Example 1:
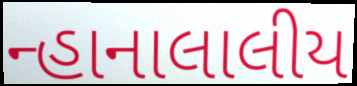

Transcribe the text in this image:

ન્હાનાલાલીય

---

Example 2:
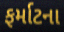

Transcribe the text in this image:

ફર્માટના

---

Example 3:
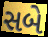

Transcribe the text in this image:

સબે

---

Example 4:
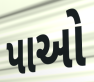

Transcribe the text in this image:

પાઓ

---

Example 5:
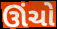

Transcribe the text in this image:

ઊંચો